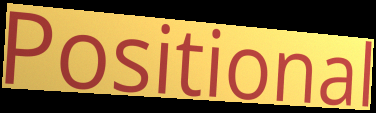
Positional